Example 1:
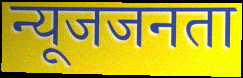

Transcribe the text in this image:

न्यूजजनता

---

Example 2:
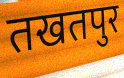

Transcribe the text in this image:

तखतपुर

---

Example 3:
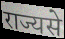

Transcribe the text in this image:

राज्यसे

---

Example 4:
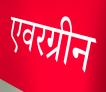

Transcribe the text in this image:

एवरग्रीन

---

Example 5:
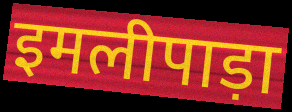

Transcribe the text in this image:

इमलीपाड़ा